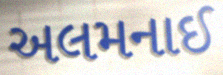
અલમનાઈ